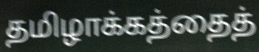
தமிழாக்கத்தைத்